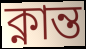
ক্নান্ত